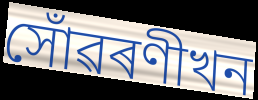
সোঁৱৰণীখন